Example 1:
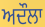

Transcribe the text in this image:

ਅਦੌਲਾ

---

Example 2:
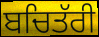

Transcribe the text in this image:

ਬਚਿਤੱਰੀ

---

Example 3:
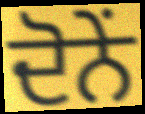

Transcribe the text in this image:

ਦੋਨੇਂ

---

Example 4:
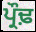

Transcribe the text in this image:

ਪ੍ਰੌਢ਼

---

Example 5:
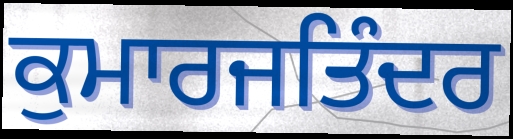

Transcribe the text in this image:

ਕੁਮਾਰਜਤਿੰਦਰ